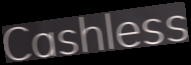
Cashless